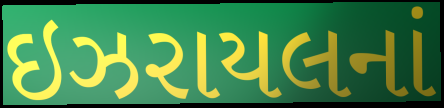
ઇઝરાયલનાં